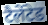
टैलेंटेड